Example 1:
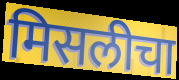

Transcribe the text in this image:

मिसलीचा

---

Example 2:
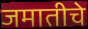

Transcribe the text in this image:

जमातीचे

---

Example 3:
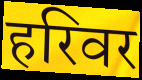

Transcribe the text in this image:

हरिवर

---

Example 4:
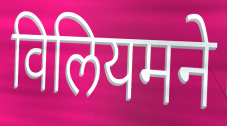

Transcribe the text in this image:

विलियमने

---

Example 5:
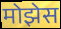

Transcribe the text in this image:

मोझेस